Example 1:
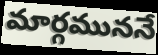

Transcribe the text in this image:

మార్గముననే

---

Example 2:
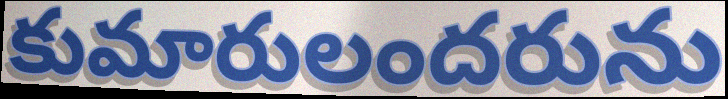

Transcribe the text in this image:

కుమారులందరును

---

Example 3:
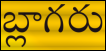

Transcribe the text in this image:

బ్లాగరు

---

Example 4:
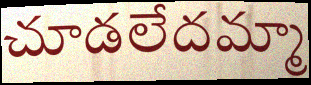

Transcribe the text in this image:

చూడలేదమ్మా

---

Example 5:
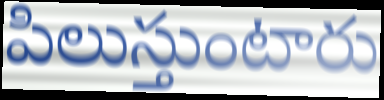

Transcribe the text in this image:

పిలుస్తుంటారు